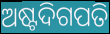
ଅଷ୍ଟଦିଗପତି